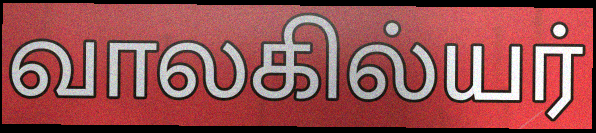
வாலகில்யர்